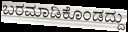
ಬರಮಾಡಿಕೊಂಡದ್ದು